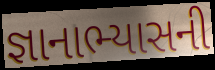
જ્ઞાનાભ્યાસની